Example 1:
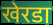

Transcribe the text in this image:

खेरडा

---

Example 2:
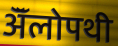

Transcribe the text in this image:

ॲॅलोपथी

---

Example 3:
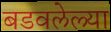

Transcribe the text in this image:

बडवलेल्या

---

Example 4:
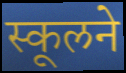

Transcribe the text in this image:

स्कूलने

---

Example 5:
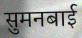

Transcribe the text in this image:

सुमनबाई